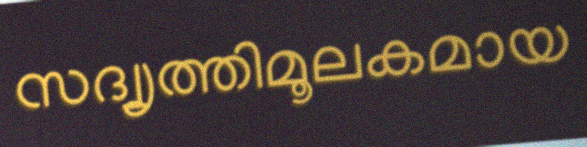
സദ്വൃത്തിമൂലകമായ